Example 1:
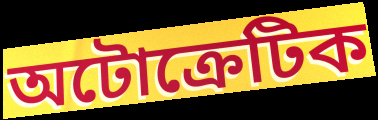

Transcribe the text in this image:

অটোক্রেটিক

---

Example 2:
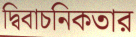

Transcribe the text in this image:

দ্বিবাচনিকতার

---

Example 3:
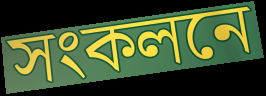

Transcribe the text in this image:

সংকলনে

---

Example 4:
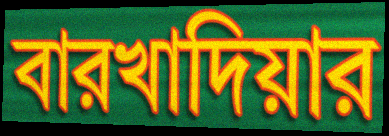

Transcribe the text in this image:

বারখাদিয়ার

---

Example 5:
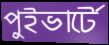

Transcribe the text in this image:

পুইভার্টে